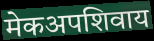
मेकअपशिवाय